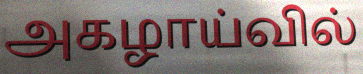
அகழாய்வில்